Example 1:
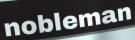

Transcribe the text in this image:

nobleman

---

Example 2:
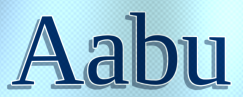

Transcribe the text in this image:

Aabu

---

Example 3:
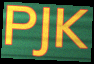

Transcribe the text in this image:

PJK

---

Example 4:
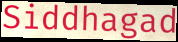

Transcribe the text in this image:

Siddhagad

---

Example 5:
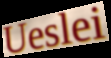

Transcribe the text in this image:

Ueslei